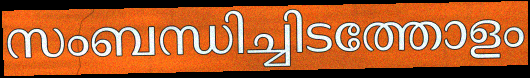
സംബന്ധിച്ചിടത്തോളം